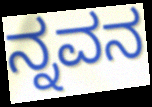
ನ್ನವನ